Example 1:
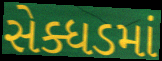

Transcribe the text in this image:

સેક્ધડમાં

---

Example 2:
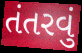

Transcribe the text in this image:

તંતરવું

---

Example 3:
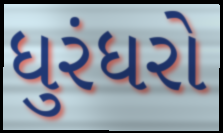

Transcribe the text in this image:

ધુરંધરો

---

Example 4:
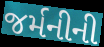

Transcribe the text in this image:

જર્મનીની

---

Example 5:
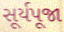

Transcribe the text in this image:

સૂર્યપૂજા